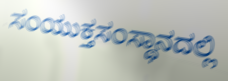
ಸಂಯುಕ್ತಸಂಸ್ಥಾನದಲ್ಲಿ